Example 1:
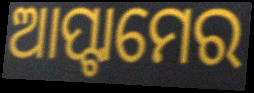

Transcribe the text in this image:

ଆପ୍ଟାମେର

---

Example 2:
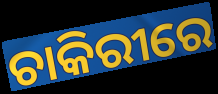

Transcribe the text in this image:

ଚାକିରୀରେ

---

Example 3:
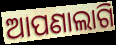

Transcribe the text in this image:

ଆପଣାଲାଗି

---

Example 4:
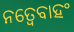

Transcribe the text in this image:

ନତ୍ୱେବାହଂ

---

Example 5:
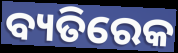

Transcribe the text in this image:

ବ୍ୟତିରେକ